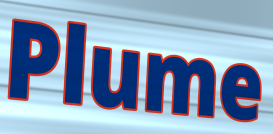
Plume